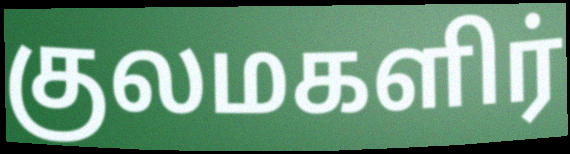
குலமகளிர்